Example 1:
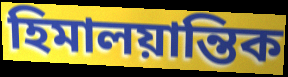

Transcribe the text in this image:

হিমালয়ান্তিক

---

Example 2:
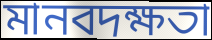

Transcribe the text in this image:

মানবদক্ষতা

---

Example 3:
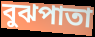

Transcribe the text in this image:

বুঝপাতা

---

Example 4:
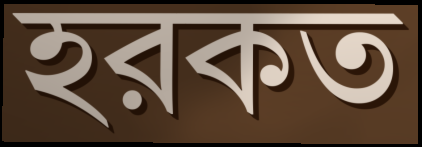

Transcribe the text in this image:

হরকত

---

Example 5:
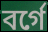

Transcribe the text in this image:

বর্গে